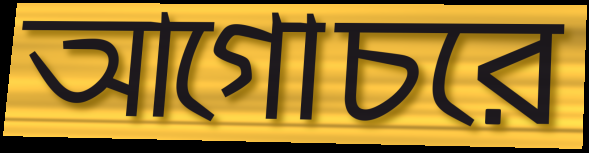
আগোচরে